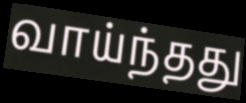
வாய்ந்தது